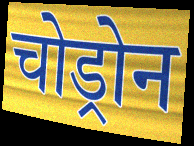
चोड्रोन